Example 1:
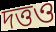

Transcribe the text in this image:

দত্তও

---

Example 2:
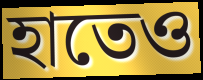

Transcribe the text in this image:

হাতেও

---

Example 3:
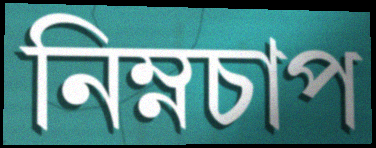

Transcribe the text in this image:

নিম্নচাপ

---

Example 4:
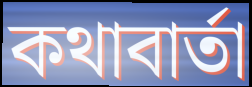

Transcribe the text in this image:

কথাবার্তা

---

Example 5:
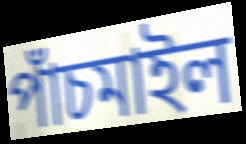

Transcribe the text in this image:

পাঁচমাইল